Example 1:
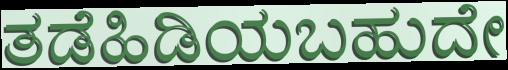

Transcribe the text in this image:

ತಡೆಹಿಡಿಯಬಹುದೇ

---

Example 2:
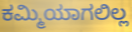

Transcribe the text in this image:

ಕಮ್ಮಿಯಾಗಲಿಲ್ಲ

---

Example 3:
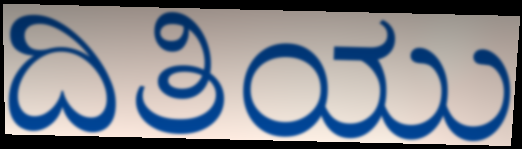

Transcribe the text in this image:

ದಿತಿಯು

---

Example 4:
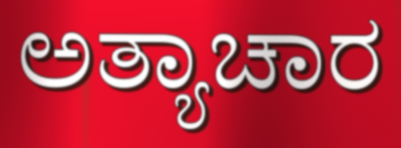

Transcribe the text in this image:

ಅತ್ಯಾಚಾರ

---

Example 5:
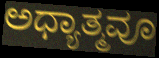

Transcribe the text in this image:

ಅಧ್ಯಾತ್ಮವೂ